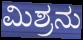
ಮಿಶ್ರನು